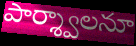
పార్శ్వాలనూ